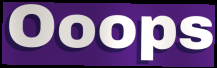
Ooops